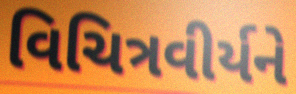
વિચિત્રવીર્યને